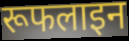
रूफलाइन